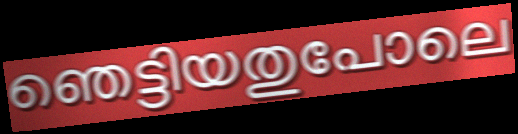
ഞെട്ടിയതുപോലെ